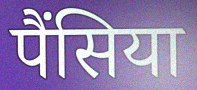
पैंसिया